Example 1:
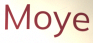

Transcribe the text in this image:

Moye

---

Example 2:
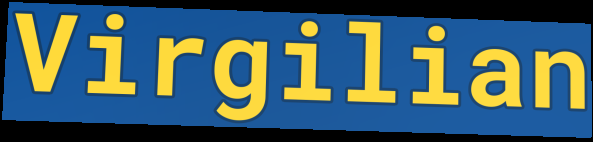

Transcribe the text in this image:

Virgilian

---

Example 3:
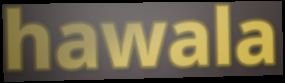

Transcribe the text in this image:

hawala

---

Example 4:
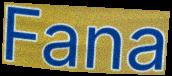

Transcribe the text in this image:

Fana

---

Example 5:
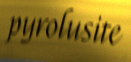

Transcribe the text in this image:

pyrolusite